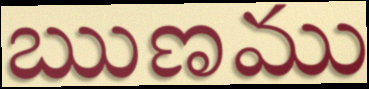
ఋణము